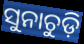
ସୁନାଚୁଡ଼ି